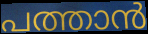
പത്താൻ